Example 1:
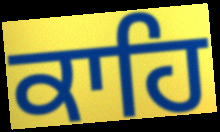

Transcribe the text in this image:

ਕਾਹਿ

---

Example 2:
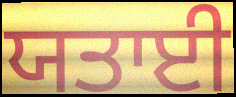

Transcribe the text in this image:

ਯਤਾਈ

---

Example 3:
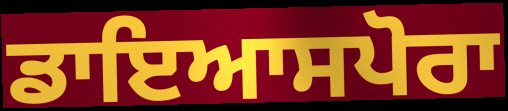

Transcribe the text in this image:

ਡਾਇਆਸਪੋਰਾ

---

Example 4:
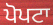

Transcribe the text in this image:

ਪੋਪਟਾ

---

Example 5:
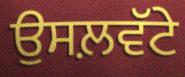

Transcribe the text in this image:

ਉਸਲ਼ਵੱਟੇ